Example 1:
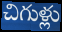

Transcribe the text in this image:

చిగుళ్లు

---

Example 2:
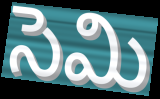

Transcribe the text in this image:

సెమి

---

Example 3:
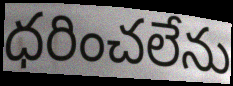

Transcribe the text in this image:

ధరించలేను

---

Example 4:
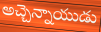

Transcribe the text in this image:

అచ్చెన్నాయుడు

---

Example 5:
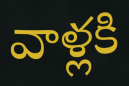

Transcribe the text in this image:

వాళ్లకి